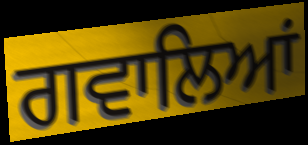
ਗਵਾਲਿਆਂ